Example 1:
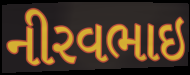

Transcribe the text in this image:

નીરવભાઇ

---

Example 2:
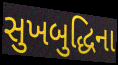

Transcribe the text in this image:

સુખબુદ્ધિના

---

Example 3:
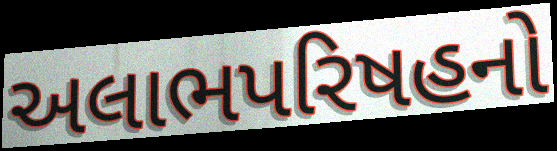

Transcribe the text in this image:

અલાભપરિષહનો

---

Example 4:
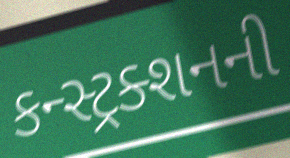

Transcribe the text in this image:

કન્સ્ટ્રક્શનની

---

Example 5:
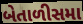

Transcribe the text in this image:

બેતાળીસમા